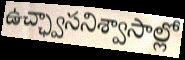
ఉచ్ఛ్వాసనిశ్వాసాల్లో